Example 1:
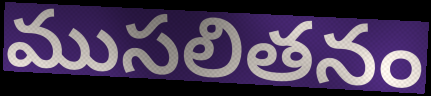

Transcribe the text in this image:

ముసలితనం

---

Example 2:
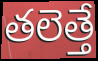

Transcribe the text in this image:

తలెత్తే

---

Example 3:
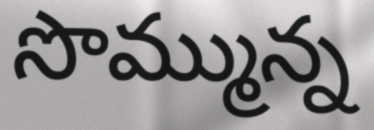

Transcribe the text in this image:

సొమ్మున్న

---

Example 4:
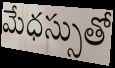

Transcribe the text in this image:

మేధస్సుతో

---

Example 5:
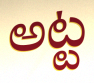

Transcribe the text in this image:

అట్ట